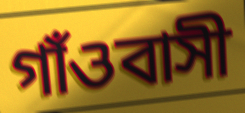
গাঁওবাসী